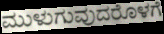
ಮುಳುಗುವುದರೊಳಗೆ